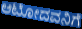
ಆಟೋದವನಿಗೆ